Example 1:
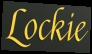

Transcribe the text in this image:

Lockie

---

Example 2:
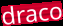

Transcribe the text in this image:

draco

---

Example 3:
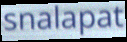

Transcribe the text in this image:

snalapat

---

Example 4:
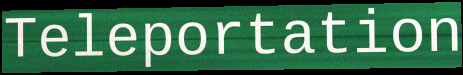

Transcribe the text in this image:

Teleportation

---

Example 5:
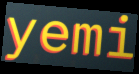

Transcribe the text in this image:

yemi